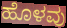
ಹೊಳವು